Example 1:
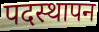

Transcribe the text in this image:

पदस्थापन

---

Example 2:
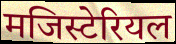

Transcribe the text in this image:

मजिस्टेरियल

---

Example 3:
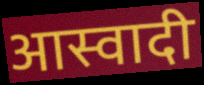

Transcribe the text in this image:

आस्वादी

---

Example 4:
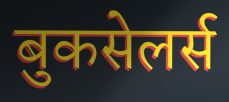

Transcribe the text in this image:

बुकसेलर्स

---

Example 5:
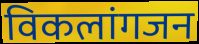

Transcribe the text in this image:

विकलांगजन